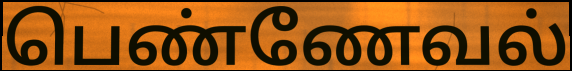
பெண்ணேவல்